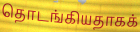
தொடங்கியதாகக்